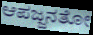
ಆಪಜ್ಜನತೋ